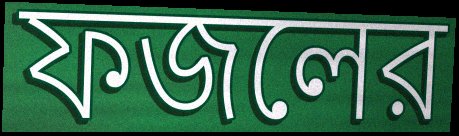
ফজলের